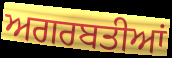
ਅਗਰਬਤੀਆਂ